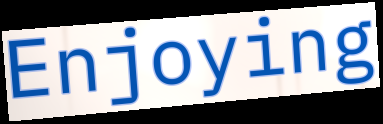
Enjoying